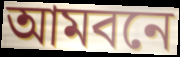
আমবনে